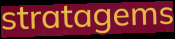
stratagems